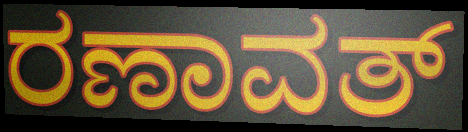
ರಣಾವತ್